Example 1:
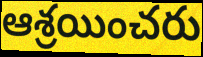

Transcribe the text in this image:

ఆశ్రయించరు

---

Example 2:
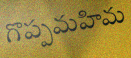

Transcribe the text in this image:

గొప్పమహిమ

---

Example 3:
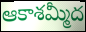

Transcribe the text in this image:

ఆకాశమ్మీద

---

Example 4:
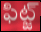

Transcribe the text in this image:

ఫిట్జ్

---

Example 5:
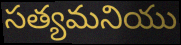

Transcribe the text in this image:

సత్యమనియు